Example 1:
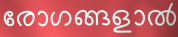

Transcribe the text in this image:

രോഗങ്ങളാൽ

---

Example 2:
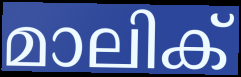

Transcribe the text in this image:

മാലിക്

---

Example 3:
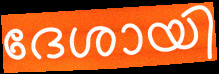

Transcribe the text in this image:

ദേശായി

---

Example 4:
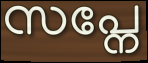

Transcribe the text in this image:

സപ്നേ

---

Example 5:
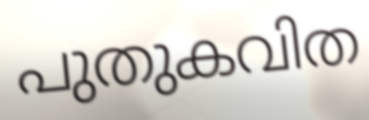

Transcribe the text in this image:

പുതുകവിത